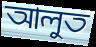
আলুত